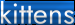
kittens